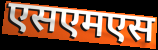
एसएमएस